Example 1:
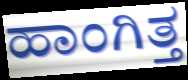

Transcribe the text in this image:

ಹಾಂಗಿತ್ತ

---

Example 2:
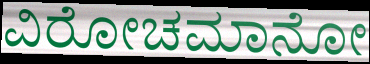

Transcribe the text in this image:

ವಿರೋಚಮಾನೋ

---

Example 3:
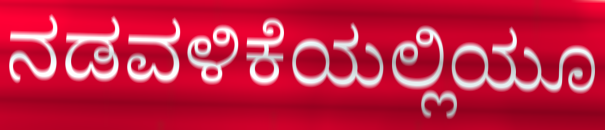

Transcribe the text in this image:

ನಡವಳಿಕೆಯಲ್ಲಿಯೂ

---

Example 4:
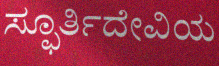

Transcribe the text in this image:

ಸ್ಫೂರ್ತಿದೇವಿಯ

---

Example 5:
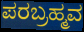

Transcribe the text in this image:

ಪರಬ್ರಹ್ಮವ